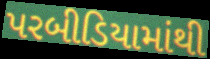
પરબીડિયામાંથી